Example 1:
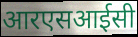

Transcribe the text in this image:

आरएसआईसी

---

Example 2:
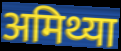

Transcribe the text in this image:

अमिथ्या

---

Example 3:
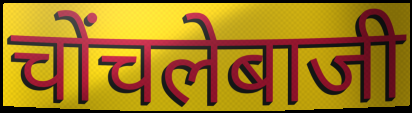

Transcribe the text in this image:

चोंचलेबाजी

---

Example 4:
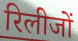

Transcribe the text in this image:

रिलीजों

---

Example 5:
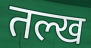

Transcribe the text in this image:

तल्ख